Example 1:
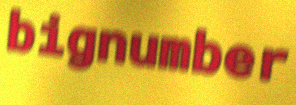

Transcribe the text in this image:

bignumber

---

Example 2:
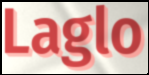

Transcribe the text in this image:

Laglo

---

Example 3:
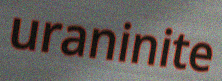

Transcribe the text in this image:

uraninite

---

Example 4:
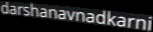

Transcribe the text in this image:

darshanavnadkarni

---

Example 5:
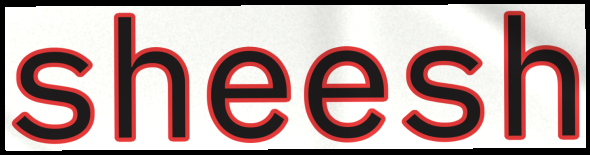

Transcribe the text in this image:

sheesh